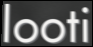
looti